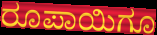
ರೂಪಾಯಿಗೂ